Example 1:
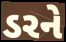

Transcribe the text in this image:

ડરને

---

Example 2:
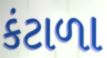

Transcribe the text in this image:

કંટાળા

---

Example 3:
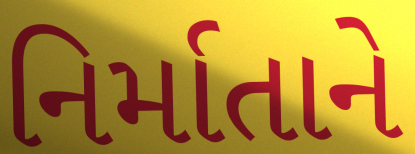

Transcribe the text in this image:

નિર્માતાને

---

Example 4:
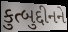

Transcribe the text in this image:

કુત્બુદ્દીનને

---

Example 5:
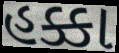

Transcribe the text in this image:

હક્કા